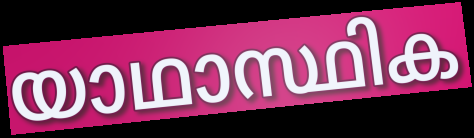
യാഥാസ്ഥിക